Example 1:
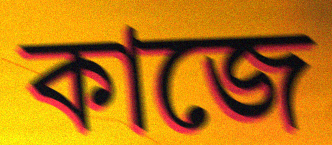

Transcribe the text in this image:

কাজে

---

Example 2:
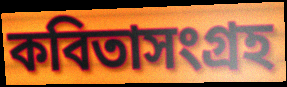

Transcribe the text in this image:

কবিতাসংগ্রহ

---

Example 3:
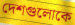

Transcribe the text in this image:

দেশগুলোকে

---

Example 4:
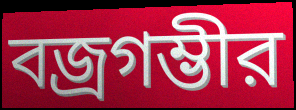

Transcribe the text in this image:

বজ্রগম্ভীর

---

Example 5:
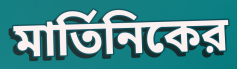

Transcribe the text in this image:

মার্তিনিকের